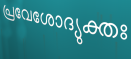
പ്രവേശോദ്യുക്തഃ